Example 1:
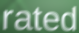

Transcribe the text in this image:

rated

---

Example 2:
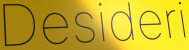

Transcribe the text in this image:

Desideri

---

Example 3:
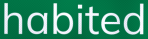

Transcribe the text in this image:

habited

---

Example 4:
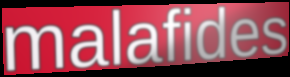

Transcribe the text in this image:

malafides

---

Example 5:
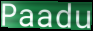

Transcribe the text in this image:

Paadu